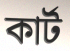
কার্ট